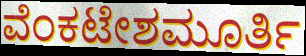
ವೆಂಕಟೇಶಮೂರ್ತಿ